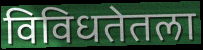
विविधतेतला